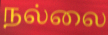
நல்லை